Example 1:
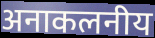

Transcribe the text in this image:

अनाकलनीय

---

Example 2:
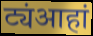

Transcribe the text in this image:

ट्यंआहां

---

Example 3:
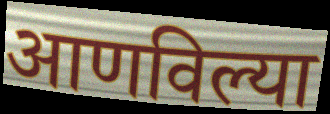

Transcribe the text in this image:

आणविल्या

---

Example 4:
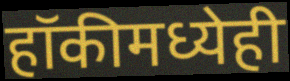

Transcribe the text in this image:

हॉकीमध्येही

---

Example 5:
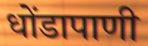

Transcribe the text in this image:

धोंडापाणी